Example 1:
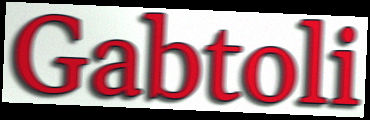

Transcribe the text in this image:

Gabtoli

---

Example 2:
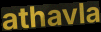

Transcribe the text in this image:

athavla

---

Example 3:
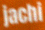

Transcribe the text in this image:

jachi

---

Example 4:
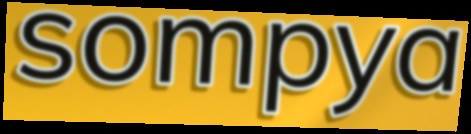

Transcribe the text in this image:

sompya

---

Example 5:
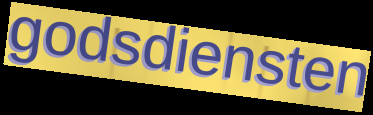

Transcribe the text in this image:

godsdiensten